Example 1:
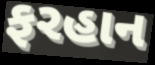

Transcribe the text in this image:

ફરહાન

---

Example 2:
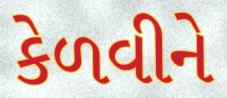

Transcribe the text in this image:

કેળવીને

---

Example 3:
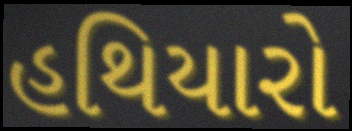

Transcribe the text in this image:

હથિયારો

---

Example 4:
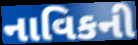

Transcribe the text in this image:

નાવિકની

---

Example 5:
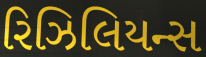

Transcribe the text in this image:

રિઝિલિયન્સ